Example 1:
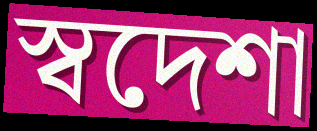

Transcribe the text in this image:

স্বদেশা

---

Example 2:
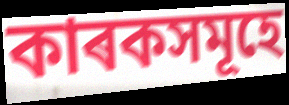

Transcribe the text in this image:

কাৰকসমূহে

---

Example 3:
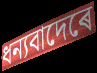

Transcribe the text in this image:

ধন্যবাদেৰে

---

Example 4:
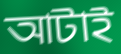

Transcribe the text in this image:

আটাই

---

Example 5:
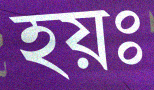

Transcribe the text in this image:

হয়ঃ